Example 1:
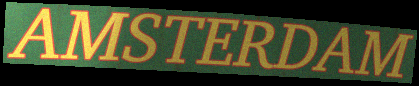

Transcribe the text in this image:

AMSTERDAM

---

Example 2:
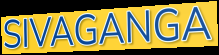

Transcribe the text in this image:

SIVAGANGA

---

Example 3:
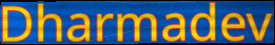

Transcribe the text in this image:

Dharmadev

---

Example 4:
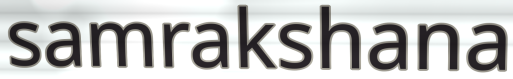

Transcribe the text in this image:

samrakshana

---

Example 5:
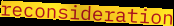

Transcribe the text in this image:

reconsideration